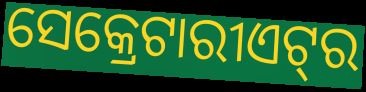
ସେକ୍ରେଟାରୀଏଟ୍‍ର